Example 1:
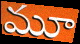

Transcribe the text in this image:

మూ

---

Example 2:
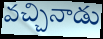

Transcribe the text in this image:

వచ్చినాడు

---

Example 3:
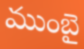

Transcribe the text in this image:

ముంబై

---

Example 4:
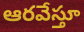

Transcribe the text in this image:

ఆరవేస్తూ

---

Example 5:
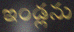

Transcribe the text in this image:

ఇండ్లను